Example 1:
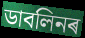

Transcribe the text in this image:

ডাবলিনৰ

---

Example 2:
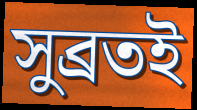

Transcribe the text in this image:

সুব্ৰতই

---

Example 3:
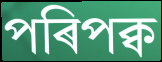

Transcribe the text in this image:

পৰিপক্ব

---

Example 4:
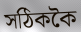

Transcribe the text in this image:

সঠিককৈ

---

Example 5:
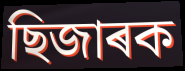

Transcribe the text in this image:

ছিজাৰক